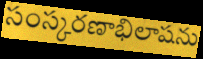
సంస్కరణాభిలాషను